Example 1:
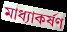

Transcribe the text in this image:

মাধ্যাকর্ষণ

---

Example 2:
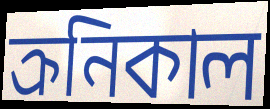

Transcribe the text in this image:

ক্রনিকাল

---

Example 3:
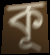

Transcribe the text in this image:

কূ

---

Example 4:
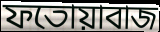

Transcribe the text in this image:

ফতোয়াবাজ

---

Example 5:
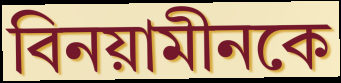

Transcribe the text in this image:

বিনয়ামীনকে